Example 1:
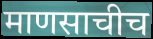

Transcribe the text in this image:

माणसाचीच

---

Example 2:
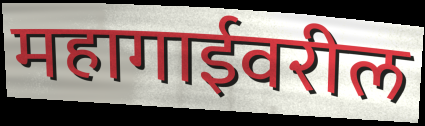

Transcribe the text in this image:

महागाईवरील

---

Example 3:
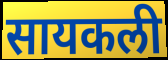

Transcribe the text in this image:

सायकली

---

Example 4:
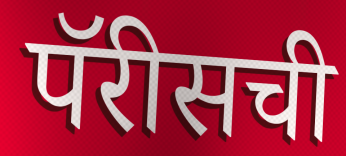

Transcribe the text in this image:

पॅरीसची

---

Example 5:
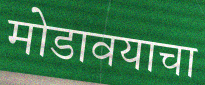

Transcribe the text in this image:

मोडावयाचा